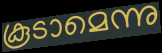
കൂടാമെന്നു